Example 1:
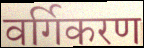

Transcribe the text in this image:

वर्गिकरण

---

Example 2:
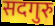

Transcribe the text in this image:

सदगुरु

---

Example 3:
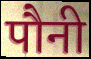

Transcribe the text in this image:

पौनी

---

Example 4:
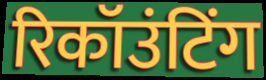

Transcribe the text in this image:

रिकॉउंटिंग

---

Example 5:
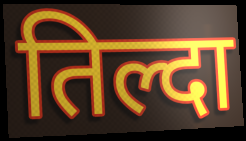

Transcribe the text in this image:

तिल्दा